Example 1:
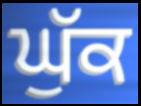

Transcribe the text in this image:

ਘੁੱਕ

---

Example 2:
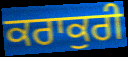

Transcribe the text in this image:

ਕਰਾਕੁਰੀ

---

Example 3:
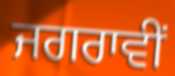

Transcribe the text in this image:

ਜਗਰਾਵੀਂ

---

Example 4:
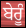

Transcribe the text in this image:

ਬੇਰੂੰ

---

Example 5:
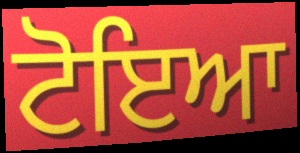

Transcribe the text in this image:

ਟੋਇਆ